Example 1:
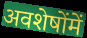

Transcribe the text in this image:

अवशेषोंमें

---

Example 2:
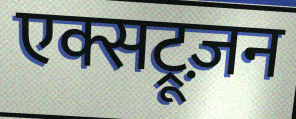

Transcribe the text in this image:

एक्सट्रूज़न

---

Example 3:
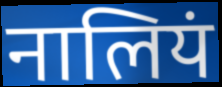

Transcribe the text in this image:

नालियं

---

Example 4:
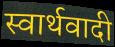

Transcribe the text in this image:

स्वार्थवादी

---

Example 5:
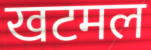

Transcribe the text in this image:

खटमल